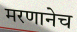
मरणानेच